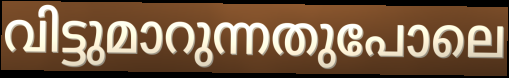
വിട്ടുമാറുന്നതുപോലെ